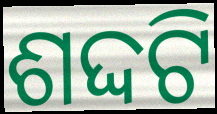
ଶଦ୍ଦଟି